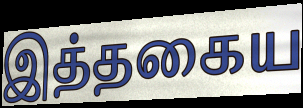
இத்தகைய